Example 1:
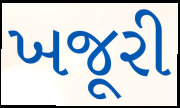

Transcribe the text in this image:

ખજૂરી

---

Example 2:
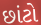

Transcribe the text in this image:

છાંટો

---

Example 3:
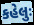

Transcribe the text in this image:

કહેલુઃ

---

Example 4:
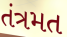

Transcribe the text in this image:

તંત્રમત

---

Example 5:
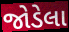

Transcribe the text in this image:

જોડેલા